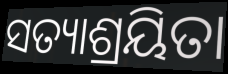
ସତ୍ୟାଶ୍ରୟିତା